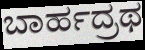
ಬಾರ್ಹದ್ರಥ